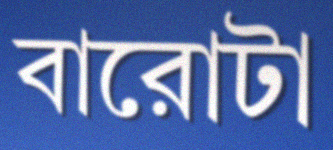
বারোটা